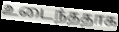
உடைந்ததாக